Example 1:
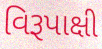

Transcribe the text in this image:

વિરૂપાક્ષી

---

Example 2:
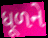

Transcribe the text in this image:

ધૂળને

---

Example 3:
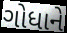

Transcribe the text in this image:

ગોધાને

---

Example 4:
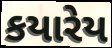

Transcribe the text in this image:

કયારેય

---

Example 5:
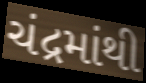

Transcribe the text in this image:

ચંદ્રમાંથી